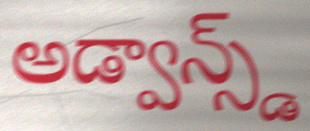
అడ్వాన్స్డ్